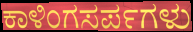
ಕಾಳಿಂಗಸರ್ಪಗಳು